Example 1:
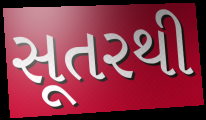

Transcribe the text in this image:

સૂતરથી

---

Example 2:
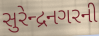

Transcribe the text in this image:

સુરેન્દ્રનગરની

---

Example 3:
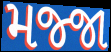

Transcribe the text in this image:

મજ્જા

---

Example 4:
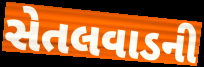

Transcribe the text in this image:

સેતલવાડની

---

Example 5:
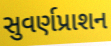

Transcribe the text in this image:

સુવર્ણપ્રાશન